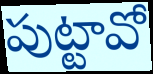
పుట్టావో